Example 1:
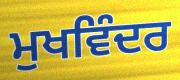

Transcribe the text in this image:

ਮੁਖਵਿੰਦਰ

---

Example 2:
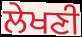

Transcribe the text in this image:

ਲੇਖਣੀ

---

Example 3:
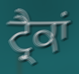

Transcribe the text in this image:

ਟ੍ਰੈਕਾਂ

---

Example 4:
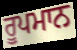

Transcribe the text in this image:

ਰੂਪਮਾਨ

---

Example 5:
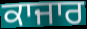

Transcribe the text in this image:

ਕਾਜਾਰ